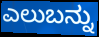
ಎಲುಬನ್ನು